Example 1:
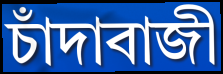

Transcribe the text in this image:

চাঁদাবাজী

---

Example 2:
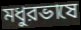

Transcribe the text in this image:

মধুরভাষে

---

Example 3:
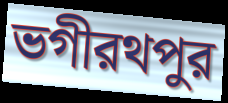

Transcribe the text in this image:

ভগীরথপুর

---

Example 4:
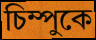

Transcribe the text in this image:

চিম্পুকে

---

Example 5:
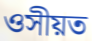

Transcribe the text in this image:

ওসীয়ত